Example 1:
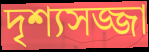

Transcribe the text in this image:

দৃশ্যসজ্জা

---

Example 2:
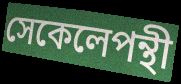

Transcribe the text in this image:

সেকেলেপন্থী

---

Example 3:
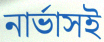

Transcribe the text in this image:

নার্ভাসই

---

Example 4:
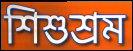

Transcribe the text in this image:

শিশুশ্রম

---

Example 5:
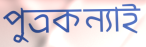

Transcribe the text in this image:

পুত্রকন্যাই